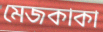
মেজকাকা